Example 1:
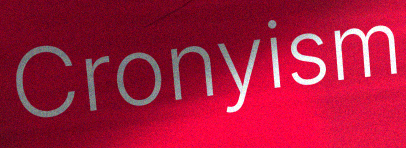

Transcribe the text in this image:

Cronyism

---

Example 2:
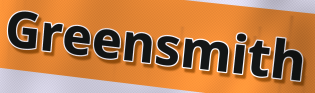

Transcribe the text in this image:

Greensmith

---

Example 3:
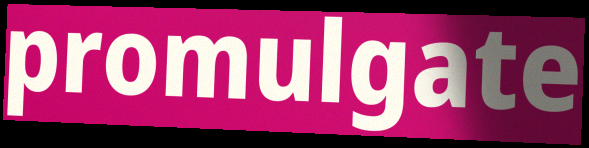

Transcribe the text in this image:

promulgate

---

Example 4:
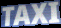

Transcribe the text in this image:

TAXI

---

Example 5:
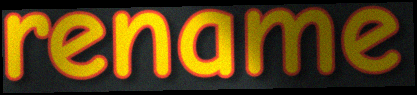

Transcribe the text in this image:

rename